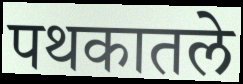
पथकातले